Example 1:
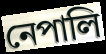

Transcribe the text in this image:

নেপালি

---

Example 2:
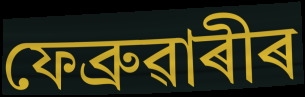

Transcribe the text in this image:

ফেব্ৰুৱাৰীৰ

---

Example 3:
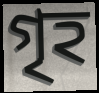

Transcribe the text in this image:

গৃহ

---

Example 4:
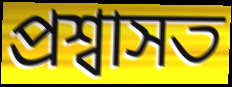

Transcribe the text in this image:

প্ৰশ্বাসত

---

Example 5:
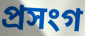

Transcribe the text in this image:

প্ৰসংগ